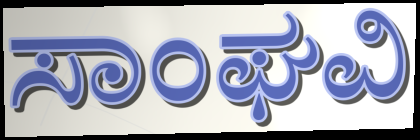
ಸಾಂಘವಿ